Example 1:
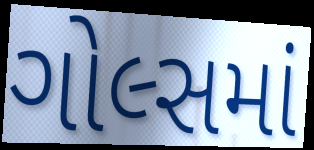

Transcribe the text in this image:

ગોલ્સમાં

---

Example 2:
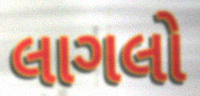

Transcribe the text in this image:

લાગલો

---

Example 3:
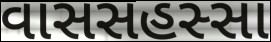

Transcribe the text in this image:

વાસસહસ્સા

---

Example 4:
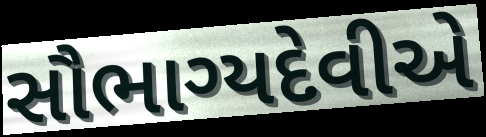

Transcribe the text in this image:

સૌભાગ્યદેવીએ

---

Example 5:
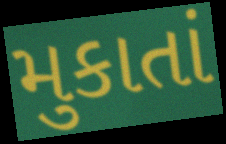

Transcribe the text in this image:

મુકાતાં